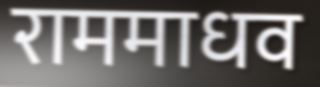
राममाधव